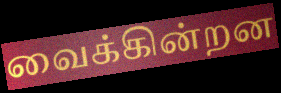
வைக்கின்றன